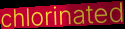
chlorinated